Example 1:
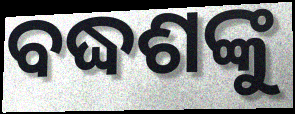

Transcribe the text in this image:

ବଦ୍ଧଶଙ୍କୁ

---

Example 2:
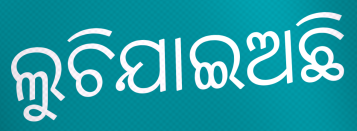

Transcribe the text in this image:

ଲୁଚିଯାଇଅଛି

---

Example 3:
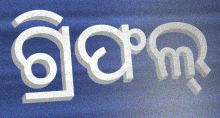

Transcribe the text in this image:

ଗ୍ରିଫଲ୍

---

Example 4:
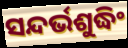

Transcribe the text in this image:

ସନ୍ଦର୍ଭଶୁଦ୍ଧିଂ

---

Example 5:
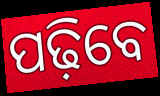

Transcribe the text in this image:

ପଢ଼ିବେ